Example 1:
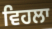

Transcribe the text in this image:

ਵਿਹਲਾ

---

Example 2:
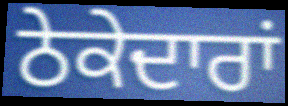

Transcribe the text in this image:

ਠੇਕੇਦਾਰਾਂ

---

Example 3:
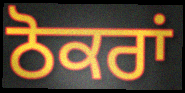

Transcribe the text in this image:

ਠੋਕਰਾਂ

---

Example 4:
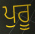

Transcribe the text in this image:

ਪੁਰੂ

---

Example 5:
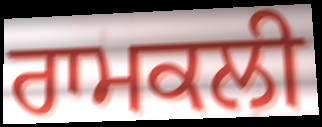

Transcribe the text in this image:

ਰਾਮਕਲੀ